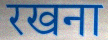
रखना